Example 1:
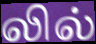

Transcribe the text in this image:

லில்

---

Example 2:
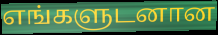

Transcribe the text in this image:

எங்களுடனான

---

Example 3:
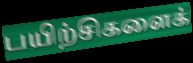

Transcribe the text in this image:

பயிற்சிகளைக்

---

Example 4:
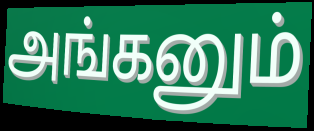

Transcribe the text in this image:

அங்கனும்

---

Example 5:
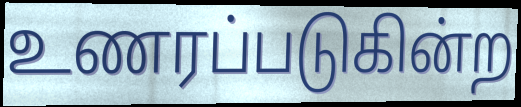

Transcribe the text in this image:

உணரப்படுகின்ற